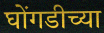
घोंगडीच्या